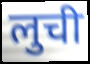
लुची